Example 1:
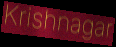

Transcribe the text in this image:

Krishnagar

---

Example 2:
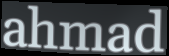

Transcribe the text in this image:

ahmad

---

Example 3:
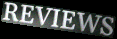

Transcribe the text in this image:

REVIEWS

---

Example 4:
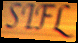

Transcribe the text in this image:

SIFL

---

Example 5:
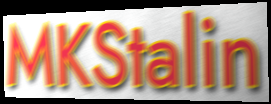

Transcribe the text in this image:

MKStalin